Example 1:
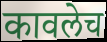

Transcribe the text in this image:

कावलेच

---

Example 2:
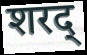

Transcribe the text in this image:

शरद्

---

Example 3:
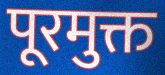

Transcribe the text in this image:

पूरमुक्त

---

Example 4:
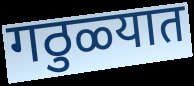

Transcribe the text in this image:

गठुळ्यात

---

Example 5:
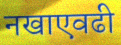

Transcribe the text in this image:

नखाएवढी